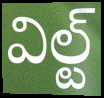
విల్ట్